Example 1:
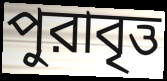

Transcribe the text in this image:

পুরাবৃত্ত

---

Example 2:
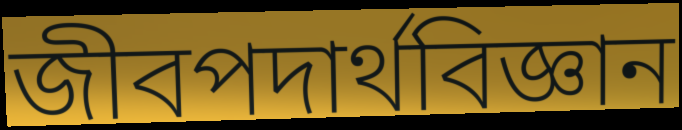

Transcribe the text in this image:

জীবপদার্থবিজ্ঞান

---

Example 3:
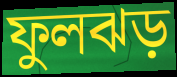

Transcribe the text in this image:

ফুলঝড়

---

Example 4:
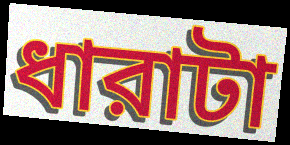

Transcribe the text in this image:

ধারাটা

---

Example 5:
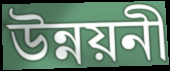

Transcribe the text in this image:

উন্নয়নী